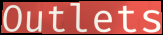
Outlets